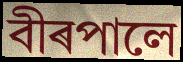
বীৰপালে